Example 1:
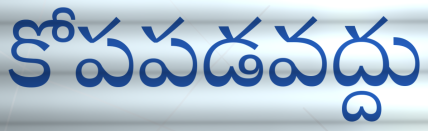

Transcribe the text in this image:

కోపపడవద్దు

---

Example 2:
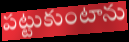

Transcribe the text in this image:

పట్టుకుంటాను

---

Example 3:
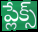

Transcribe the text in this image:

ప్లేక్స్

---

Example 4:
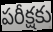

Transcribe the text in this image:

పరీక్షకు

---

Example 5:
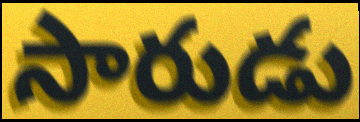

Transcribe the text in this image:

సారుడు